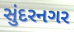
સુંદરનગર